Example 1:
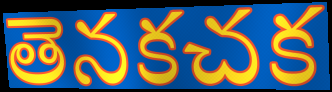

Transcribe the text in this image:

తెనకచక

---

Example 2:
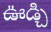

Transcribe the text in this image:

ఊడ్చి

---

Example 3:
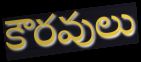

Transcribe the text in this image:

కౌరవులు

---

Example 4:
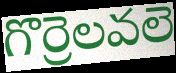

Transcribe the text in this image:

గొర్రెలవలె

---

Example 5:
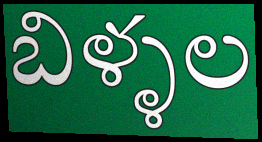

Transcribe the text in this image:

బిళ్ళల